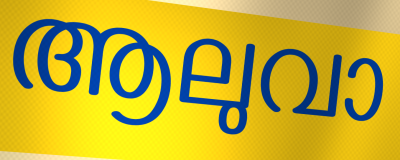
ആലുവാ